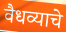
वैधव्याचे